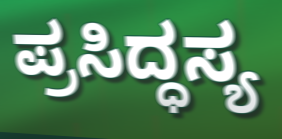
ಪ್ರಸಿದ್ಧಸ್ಯ